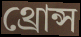
থ্রোন্স